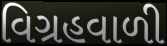
વિગ્રહવાળી